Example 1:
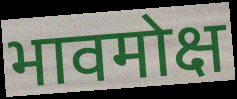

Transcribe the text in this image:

भावमोक्ष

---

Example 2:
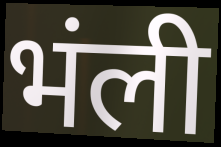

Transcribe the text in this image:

भंली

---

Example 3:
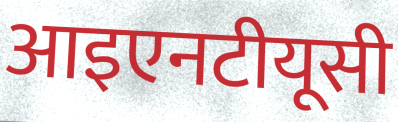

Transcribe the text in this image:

आइएनटीयूसी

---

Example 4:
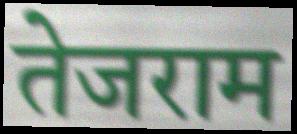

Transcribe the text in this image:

तेजराम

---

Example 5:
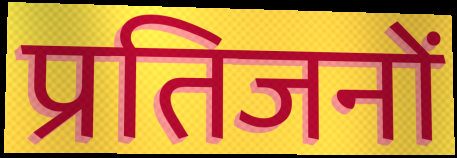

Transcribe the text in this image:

प्रतिजनों